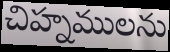
చిహ్నములను